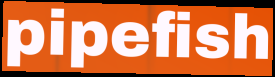
pipefish